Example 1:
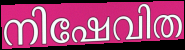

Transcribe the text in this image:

നിഷേവിത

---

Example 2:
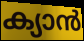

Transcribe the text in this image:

ക്യാൻ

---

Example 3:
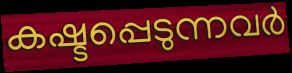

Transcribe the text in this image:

കഷ്ടപ്പെടുന്നവർ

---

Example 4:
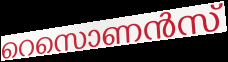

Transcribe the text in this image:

റെസൊണൻസ്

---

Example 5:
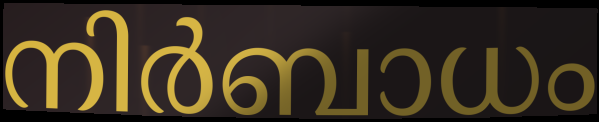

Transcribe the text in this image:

നിർബാധം